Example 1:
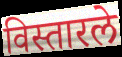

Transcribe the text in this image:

विस्तारले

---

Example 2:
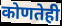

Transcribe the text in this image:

कोणतेही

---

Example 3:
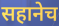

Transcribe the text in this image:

सहानेच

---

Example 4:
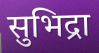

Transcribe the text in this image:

सुभिद्रा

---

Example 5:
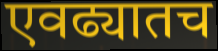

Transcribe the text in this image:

एवढ्यातच